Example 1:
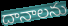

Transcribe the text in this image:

దానాలను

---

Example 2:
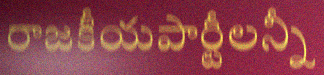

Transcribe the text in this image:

రాజకీయపార్టీలన్నీ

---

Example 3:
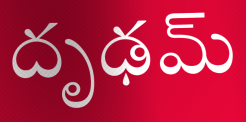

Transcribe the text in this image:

దృఢమ్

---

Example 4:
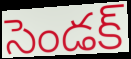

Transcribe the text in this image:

సెండక్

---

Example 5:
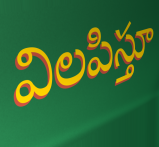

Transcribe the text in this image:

విలపిస్తూ